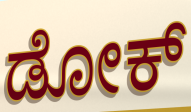
ಡೋಕ್